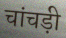
चांचड़ी